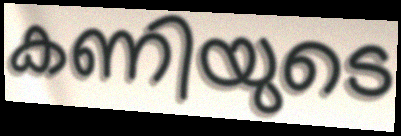
കണിയുടെ